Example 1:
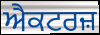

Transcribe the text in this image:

ਐਕਟਰਜ਼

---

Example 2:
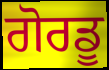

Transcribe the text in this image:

ਗੋਰਡੂ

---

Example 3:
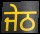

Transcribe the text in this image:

ਜੇਠ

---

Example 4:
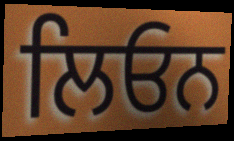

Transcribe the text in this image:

ਲਿਓਨ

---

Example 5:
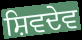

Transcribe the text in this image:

ਸ਼ਿਵਦੇਵ